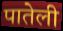
पातेली